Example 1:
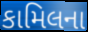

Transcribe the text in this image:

કામિલના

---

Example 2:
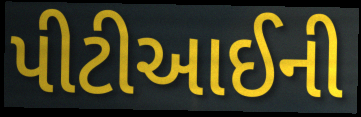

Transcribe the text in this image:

પીટીઆઈની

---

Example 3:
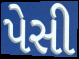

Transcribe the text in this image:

પેસી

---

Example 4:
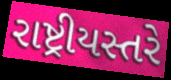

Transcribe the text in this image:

રાષ્ટ્રીયસ્તરે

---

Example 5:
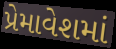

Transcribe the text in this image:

પ્રેમાવેશમાં